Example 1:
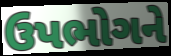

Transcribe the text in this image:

ઉપભોગને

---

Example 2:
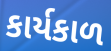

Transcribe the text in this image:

કાર્યકાળ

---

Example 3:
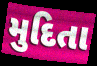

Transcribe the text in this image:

મુદિતા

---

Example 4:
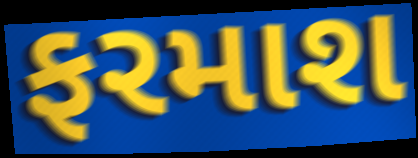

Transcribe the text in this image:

ફરમાશ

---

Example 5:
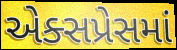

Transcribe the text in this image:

એક્સપ્રેસમાં